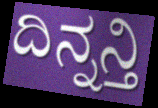
ದಿನ್ನನ್ತಿ